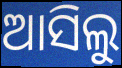
ଆସିଲୁ